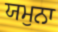
ਯਮੁਨਾ